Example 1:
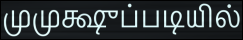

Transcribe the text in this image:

முமுக்ஷுப்படியில்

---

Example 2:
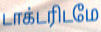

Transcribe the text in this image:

டாக்டரிடமே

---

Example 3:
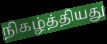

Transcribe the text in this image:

நிகழ்த்தியது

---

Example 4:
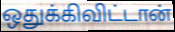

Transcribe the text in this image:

ஒதுக்கிவிட்டான்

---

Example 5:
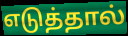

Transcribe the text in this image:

எடுத்தால்